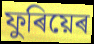
ফুৰিয়েৰ